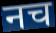
नच